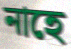
নাহে